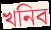
খনিব